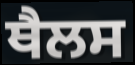
ਥੈਲਸ